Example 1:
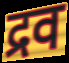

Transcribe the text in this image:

द्रव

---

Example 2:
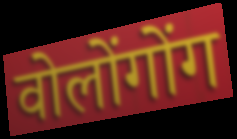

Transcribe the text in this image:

वोलोंगोंग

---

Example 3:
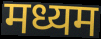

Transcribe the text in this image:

मध्यम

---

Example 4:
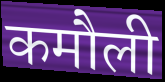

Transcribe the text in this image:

कमौली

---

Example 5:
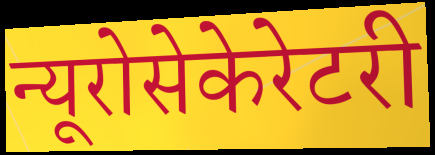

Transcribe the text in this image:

न्यूरोसेकेरेटरी